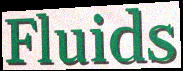
Fluids